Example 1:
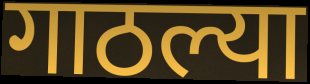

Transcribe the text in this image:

गाठल्या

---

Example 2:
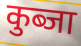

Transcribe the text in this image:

कुब्जा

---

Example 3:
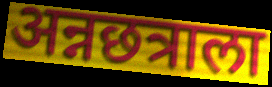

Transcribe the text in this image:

अन्नछत्राला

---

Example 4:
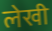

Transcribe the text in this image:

लेखी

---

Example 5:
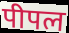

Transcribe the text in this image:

पीपल